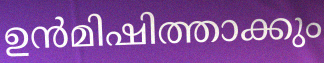
ഉൻമിഷിത്താക്കും